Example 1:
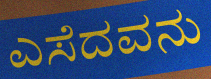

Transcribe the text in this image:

ಎಸೆದವನು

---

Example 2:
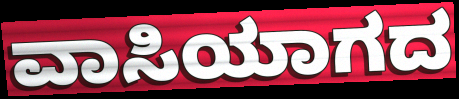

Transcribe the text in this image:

ವಾಸಿಯಾಗದ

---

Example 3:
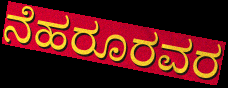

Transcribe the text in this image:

ನೆಹರೂರವರ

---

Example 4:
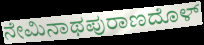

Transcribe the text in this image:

ನೇಮಿನಾಥಪುರಾಣದೊಳ್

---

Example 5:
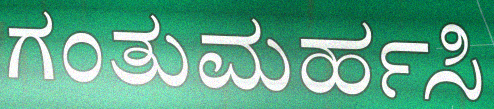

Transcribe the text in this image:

ಗಂತುಮರ್ಹಸಿ